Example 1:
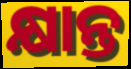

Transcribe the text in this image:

କ୍ଷାନ୍ତ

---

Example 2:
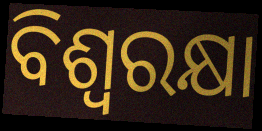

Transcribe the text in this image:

ବିଶ୍ୱରକ୍ଷା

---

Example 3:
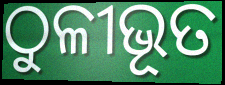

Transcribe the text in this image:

ଠୁଳୀଭୂତ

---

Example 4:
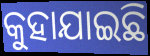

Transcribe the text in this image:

କୁହାଯାଇଛି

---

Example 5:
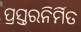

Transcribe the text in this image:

ପ୍ରସ୍ତରନିର୍ମିତ